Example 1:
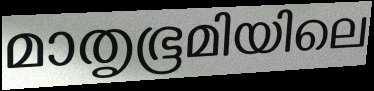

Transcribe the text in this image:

മാതൃഭൂമിയിലെ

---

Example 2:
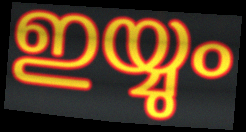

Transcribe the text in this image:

ഇയ്യും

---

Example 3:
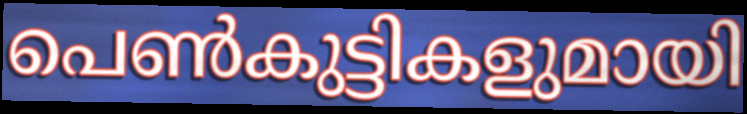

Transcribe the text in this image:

പെൺകുട്ടികളുമായി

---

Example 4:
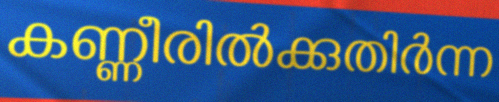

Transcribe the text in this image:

കണ്ണീരിൽക്കുതിർന്ന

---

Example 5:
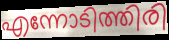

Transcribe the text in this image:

എന്നോടിത്തിരി